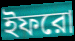
ইফরো